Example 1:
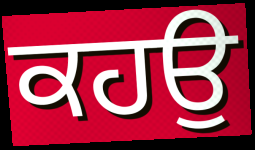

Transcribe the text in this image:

ਕਹਉ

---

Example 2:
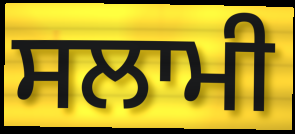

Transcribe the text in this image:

ਸਲਾਮੀ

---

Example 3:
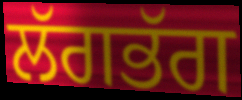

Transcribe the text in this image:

ਲੱਗਭੱਗ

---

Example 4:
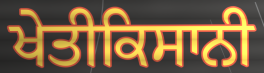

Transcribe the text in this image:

ਖੇਤੀਕਿਸਾਨੀ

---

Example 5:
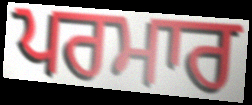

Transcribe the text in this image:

ਪਰਮਾਰ